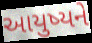
આયુષ્યને